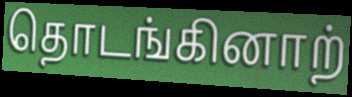
தொடங்கினாற்